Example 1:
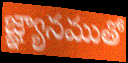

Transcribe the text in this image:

జ్ఞ్యానముతో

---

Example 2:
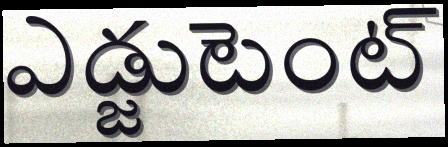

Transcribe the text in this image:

ఎడ్జుటెంట్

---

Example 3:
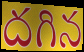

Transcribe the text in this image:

దగిన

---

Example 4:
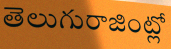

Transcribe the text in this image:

తెలుగురాజింట్లో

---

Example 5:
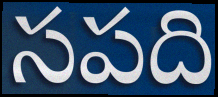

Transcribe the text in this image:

సపది